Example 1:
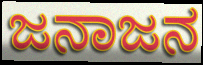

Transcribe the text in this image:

ಜನಾಜನ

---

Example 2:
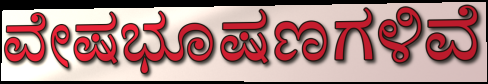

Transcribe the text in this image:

ವೇಷಭೂಷಣಗಳಿವೆ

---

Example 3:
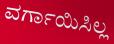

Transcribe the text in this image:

ವರ್ಗಾಯಿಸಿಲ್ಲ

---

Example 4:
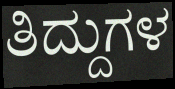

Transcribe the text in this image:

ತಿದ್ದುಗಳ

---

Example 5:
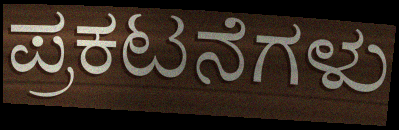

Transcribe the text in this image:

ಪ್ರಕಟನೆಗಳು